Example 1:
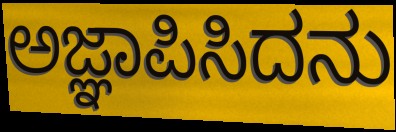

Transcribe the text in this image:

ಅಜ್ಞಾಪಿಸಿದನು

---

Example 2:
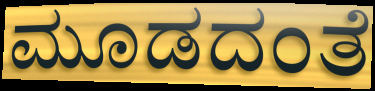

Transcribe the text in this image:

ಮೂಡದಂತೆ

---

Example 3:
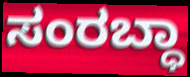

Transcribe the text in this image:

ಸಂರಬ್ಧಾ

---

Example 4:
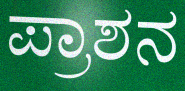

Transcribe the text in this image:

ಪ್ರಾಶನ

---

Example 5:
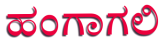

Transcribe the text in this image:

ಹಂಗಾಗಲಿ